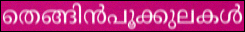
തെങ്ങിൻപൂക്കുലകൾ